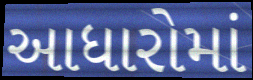
આધારોમાં